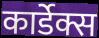
कार्डेक्स